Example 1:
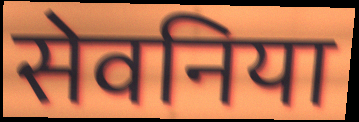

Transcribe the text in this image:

सेवनिया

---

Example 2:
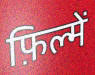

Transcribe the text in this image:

फ़िल्में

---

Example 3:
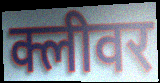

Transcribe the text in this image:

क्लीवर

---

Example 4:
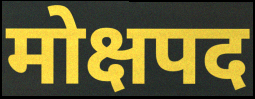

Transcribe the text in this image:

मोक्षपद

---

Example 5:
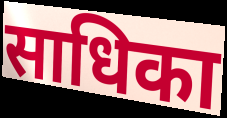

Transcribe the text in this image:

साधिका